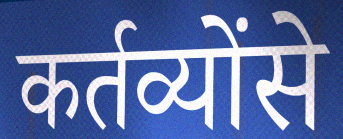
कर्तव्योंसे